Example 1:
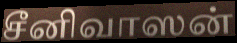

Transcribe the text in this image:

சீனிவாஸன்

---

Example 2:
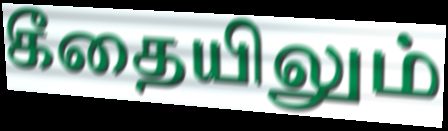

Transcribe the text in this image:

கீதையிலும்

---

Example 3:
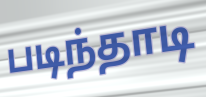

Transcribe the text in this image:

படிந்தாடி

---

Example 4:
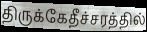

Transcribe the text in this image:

திருக்கேதீச்சரத்தில்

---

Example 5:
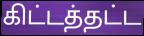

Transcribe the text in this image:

கிட்டத்தட்ட